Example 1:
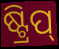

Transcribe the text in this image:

ଷ୍ଟ୍ରିପ୍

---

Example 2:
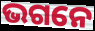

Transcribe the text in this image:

ଭଗନେ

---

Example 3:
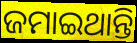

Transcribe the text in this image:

ଜମାଇଥାନ୍ତି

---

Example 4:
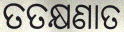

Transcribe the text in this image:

ତତକ୍ଷଣାତ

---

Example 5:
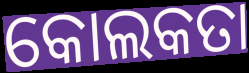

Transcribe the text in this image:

କୋଲକତା